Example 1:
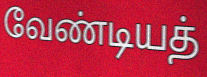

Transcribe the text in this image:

வேண்டியத்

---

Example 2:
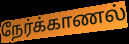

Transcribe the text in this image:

நேர்க்காணல்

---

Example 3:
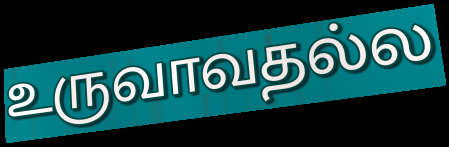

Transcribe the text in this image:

உருவாவதல்ல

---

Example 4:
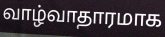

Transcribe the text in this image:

வாழ்வாதாரமாக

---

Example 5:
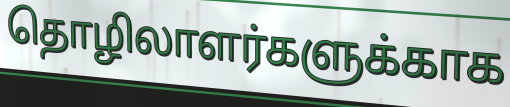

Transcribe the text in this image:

தொழிலாளர்களுக்காக